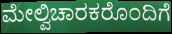
ಮೇಲ್ವಿಚಾರಕರೊಂದಿಗೆ